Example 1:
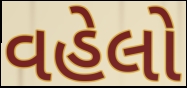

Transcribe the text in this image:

વહેલો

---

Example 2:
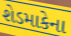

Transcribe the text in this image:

શેડમાકેના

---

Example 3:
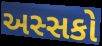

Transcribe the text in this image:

અસ્સકો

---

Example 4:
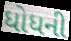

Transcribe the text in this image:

ધોધની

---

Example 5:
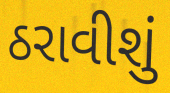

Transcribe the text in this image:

ઠરાવીશું